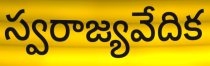
స్వరాజ్యవేదిక